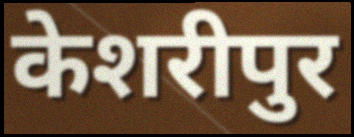
केशरीपुर